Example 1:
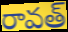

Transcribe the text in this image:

రావత్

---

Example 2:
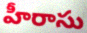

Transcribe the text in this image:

హీరాసు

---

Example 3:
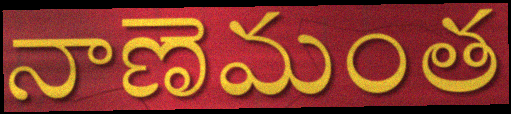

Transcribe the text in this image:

నాణెమంత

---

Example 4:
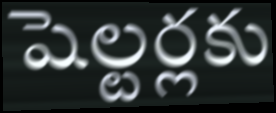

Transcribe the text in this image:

షెల్టర్లకు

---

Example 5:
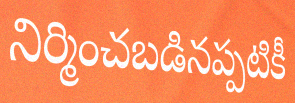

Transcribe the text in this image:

నిర్మించబడినప్పటికీ